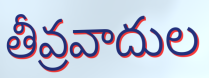
తీవ్రవాదుల